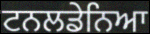
ਟਨਲਡੇਨਿਆ